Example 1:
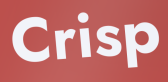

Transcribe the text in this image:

Crisp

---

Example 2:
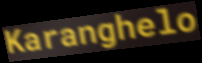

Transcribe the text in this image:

Karanghelo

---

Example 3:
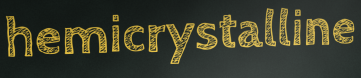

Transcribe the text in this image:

hemicrystalline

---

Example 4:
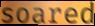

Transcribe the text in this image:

soared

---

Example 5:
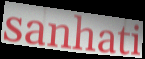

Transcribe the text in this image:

sanhati